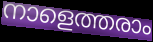
നാളെത്തരാം